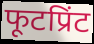
फूटप्रिंट